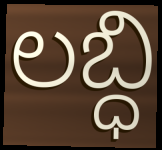
లబ్ధి